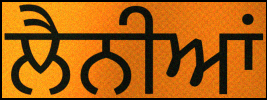
ਲੈਨੀਆਂ